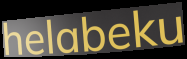
helabeku